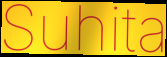
Suhita